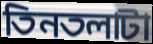
তিনতলাটা